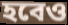
হবেও